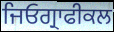
ਜਿਓਗ੍ਰਾਫੀਕਲ